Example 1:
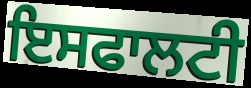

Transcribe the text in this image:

ਇਸਫਾਲਟੀ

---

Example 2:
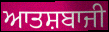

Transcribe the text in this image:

ਆਤਸ਼ਬਾਜੀ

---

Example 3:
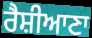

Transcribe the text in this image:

ਰੈਸ਼ੀਆਣਾ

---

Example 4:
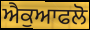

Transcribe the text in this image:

ਐਕੁਆਫਲੋ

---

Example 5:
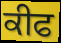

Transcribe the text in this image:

ਕੀਫ